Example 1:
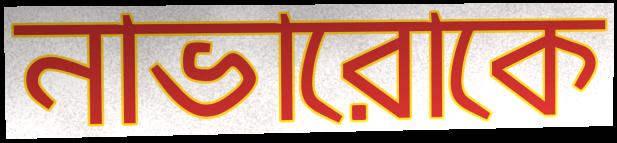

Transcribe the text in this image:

নাভারোকে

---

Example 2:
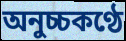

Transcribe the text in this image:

অনুচ্চকণ্ঠে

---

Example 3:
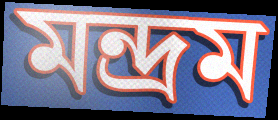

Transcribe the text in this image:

মন্দ্রম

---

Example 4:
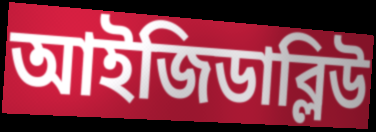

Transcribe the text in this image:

আইজিডাব্লিউ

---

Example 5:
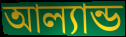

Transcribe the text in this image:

আল্যান্ড